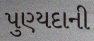
પુણ્યદાની